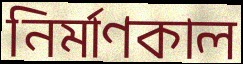
নির্মাণকাল